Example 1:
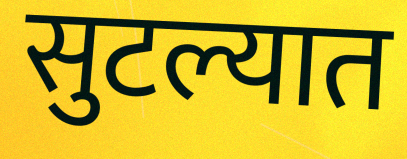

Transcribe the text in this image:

सुटल्यात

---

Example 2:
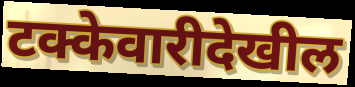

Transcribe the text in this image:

टक्केवारीदेखील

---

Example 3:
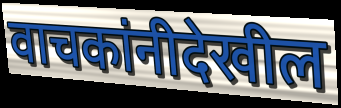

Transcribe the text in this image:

वाचकांनीदेखील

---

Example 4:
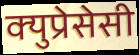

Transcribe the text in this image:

क्युप्रेसेसी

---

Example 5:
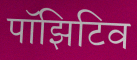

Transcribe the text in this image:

पॉझिटिव